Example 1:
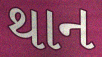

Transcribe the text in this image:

થાન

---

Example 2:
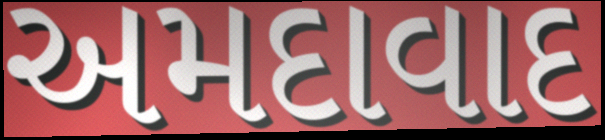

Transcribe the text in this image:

અમદાવાદ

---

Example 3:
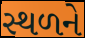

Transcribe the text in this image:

સ્થળને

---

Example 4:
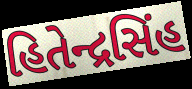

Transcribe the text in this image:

હિતેન્દ્રસિંહ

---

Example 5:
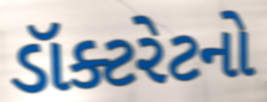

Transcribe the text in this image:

ડૉક્ટરેટનો